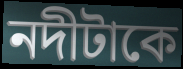
নদীটাকে